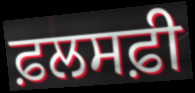
ਫ਼ਲਸਫ਼ੀ